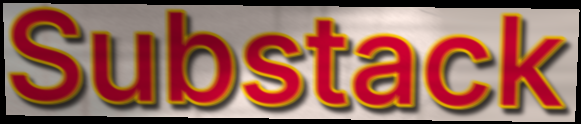
Substack